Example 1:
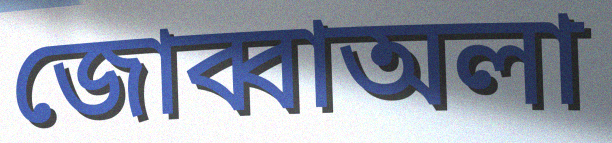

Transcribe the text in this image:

জোব্বাঅলা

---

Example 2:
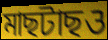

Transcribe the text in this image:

মাছটাছও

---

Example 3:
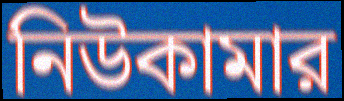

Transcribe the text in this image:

নিউকামার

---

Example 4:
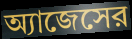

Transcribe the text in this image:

অ্যাজেসের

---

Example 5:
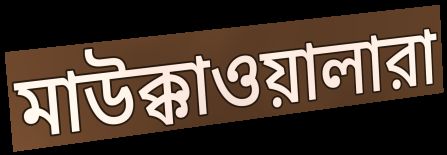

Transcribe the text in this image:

মাউক্কাওয়ালারা